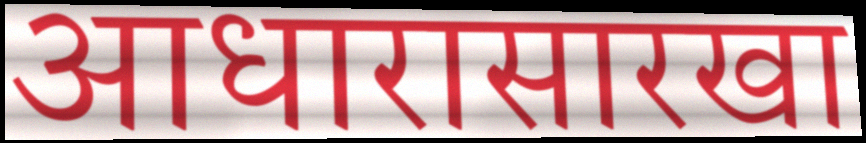
आधारासारखा